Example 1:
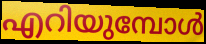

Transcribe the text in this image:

എറിയുമ്പോൾ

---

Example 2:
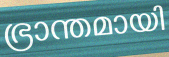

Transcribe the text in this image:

ഭ്രാന്തമായി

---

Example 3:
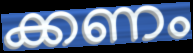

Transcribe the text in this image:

ക്കണം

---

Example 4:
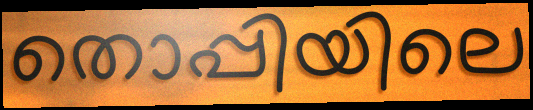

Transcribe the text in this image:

തൊപ്പിയിലെ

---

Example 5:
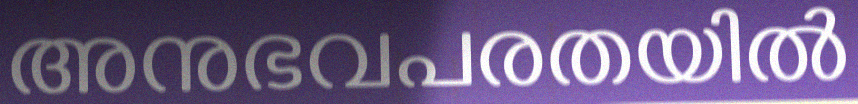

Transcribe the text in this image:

അനുഭവപരതയിൽ